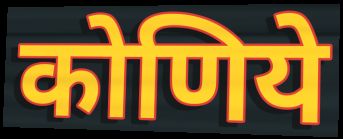
कोणिये